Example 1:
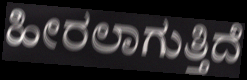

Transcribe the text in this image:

ಹೀರಲಾಗುತ್ತಿದೆ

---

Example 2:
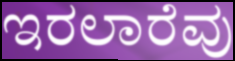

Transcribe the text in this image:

ಇರಲಾರೆವು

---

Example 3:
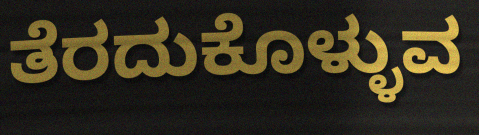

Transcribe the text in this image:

ತೆರದುಕೊಳ್ಳುವ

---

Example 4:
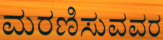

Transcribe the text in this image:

ಮರಣಿಸುವವರ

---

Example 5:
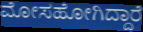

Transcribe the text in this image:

ಮೋಸಹೋಗಿದ್ದಾರೆ